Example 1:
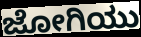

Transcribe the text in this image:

ಜೋಗಿಯು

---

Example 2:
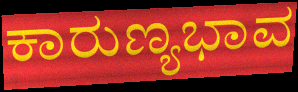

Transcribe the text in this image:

ಕಾರುಣ್ಯಭಾವ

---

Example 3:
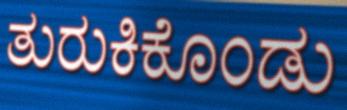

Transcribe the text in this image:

ತುರುಕಿಕೊಂಡು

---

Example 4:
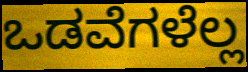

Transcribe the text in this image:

ಒಡವೆಗಳೆಲ್ಲ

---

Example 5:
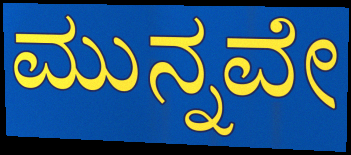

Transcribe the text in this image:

ಮುನ್ನವೇ